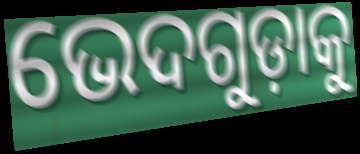
ଭେଦଗୁଡ଼ାକୁ